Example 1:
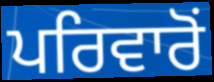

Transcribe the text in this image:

ਪਰਿਵਾਰੋਂ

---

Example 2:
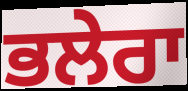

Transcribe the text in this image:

ਭਲੇਰਾ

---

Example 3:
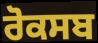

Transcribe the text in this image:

ਰੋਕਸਬ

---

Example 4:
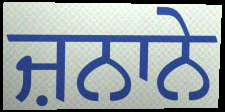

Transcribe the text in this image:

ਜ਼ਨਾਨੇ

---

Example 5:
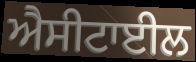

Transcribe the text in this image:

ਐਸੀਟਾਈਲ